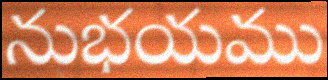
నుభయము